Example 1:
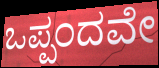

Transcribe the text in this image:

ಒಪ್ಪಂದವೇ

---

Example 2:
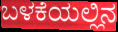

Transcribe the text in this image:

ಬಳಕೆಯಲ್ಲಿನ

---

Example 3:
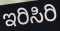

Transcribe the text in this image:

ಇರಿಸಿರಿ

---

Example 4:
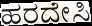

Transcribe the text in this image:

ಹರದೇಸಿ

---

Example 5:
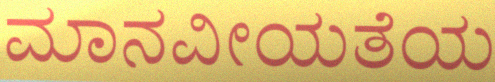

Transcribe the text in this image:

ಮಾನವೀಯತೆಯ